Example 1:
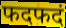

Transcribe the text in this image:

फदफदं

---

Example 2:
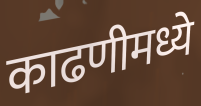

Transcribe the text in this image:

काढणीमध्ये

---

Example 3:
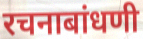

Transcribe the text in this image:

रचनाबांधणी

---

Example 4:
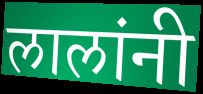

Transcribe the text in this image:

लालांनी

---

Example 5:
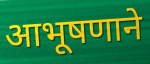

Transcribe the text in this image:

आभूषणाने